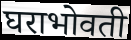
घराभोवती